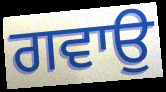
ਗਵਾਉ